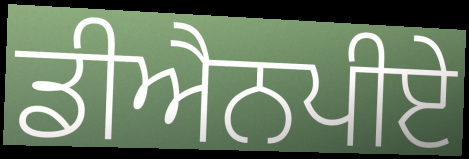
ਡੀਐਨਪੀਏ